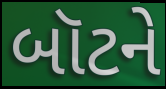
બૉટને